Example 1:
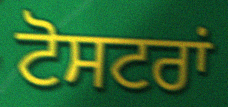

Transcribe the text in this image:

ਟੋਸਟਰਾਂ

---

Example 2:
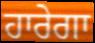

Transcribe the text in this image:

ਹਾਰੇਗਾ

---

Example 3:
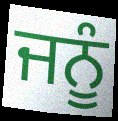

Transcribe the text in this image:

ਜਨੂੰ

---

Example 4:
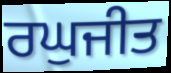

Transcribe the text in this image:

ਰਘੁਜੀਤ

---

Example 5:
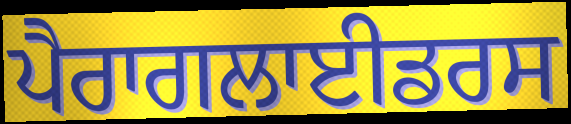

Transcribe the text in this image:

ਪੈਰਾਗਲਾਈਡਰਸ